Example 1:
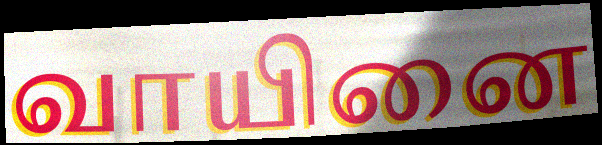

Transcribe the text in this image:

வாயினை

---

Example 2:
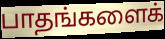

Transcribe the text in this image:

பாதங்களைக்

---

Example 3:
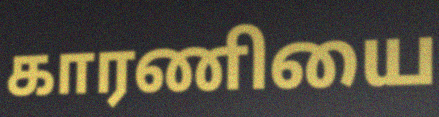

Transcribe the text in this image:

காரணியை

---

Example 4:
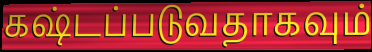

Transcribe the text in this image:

கஷ்டப்படுவதாகவும்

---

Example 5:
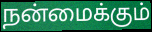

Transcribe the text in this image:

நன்மைக்கும்